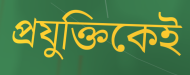
প্রযুক্তিকেই